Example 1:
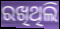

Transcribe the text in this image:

ରଖିଥିଲି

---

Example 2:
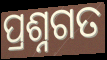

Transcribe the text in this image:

ପ୍ରଶ୍ନଗତ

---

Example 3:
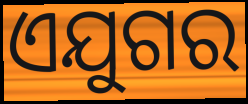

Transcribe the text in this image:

ଏଯୁଗର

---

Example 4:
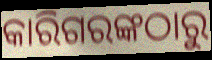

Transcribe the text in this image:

କାରିଗରଙ୍କଠାରୁ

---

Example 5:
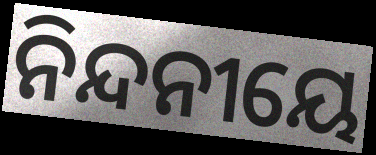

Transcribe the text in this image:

ନିନ୍ଦନୀୟେ